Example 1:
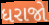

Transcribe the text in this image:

ધરાજો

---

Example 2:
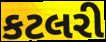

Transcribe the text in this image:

કટલરી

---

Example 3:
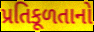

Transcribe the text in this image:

પ્રતિકૂળતાનો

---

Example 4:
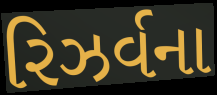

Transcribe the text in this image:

રિઝર્વના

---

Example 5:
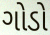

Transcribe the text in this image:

ગોડો